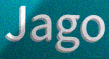
Jago